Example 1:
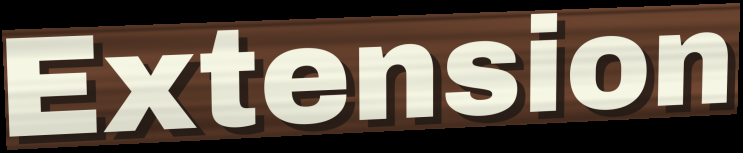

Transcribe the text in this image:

Extension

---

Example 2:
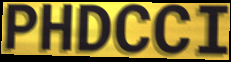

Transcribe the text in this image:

PHDCCI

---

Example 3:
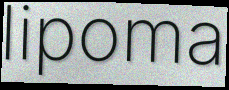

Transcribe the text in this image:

lipoma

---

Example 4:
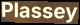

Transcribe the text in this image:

Plassey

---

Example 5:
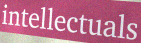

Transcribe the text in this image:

intellectuals